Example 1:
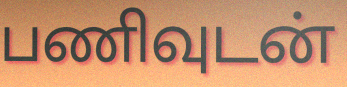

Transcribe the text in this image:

பணிவுடன்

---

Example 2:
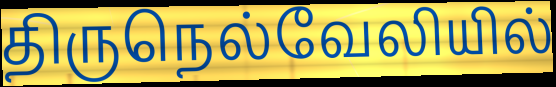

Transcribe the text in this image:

திருநெல்வேலியில்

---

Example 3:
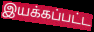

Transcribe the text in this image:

இயக்கப்பட்ட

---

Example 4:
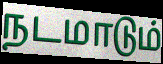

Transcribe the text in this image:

நடமாடும்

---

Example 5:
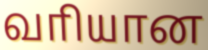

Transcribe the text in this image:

வரியான